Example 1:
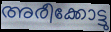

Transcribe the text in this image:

അരീക്കോട്ടു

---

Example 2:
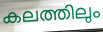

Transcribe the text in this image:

കലത്തിലും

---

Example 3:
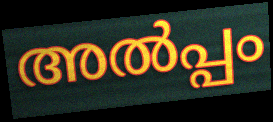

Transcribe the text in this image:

അൽപ്പം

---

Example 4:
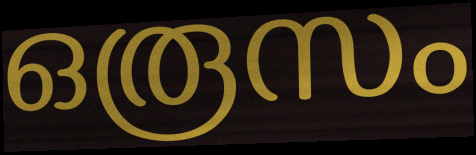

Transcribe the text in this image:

ഒരൂസം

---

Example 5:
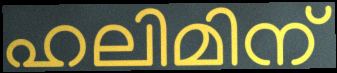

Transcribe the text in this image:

ഹലിമിന്